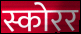
स्कोरर